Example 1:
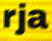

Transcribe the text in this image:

rja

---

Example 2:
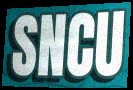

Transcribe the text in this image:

SNCU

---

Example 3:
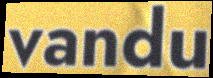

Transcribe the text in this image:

vandu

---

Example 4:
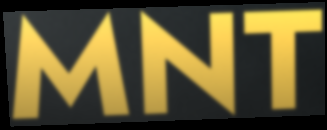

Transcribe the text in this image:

MNT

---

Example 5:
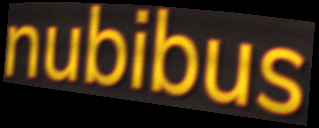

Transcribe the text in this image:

nubibus